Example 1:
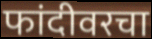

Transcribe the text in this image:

फांदीवरचा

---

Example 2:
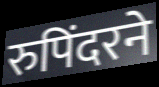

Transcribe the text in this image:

रुपिंदरने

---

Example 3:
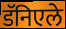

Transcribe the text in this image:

डॅनिएले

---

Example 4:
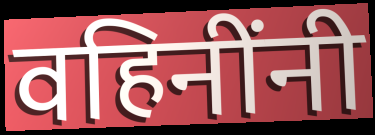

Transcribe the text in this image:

वहिनींनी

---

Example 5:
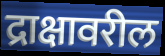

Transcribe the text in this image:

द्राक्षावरील